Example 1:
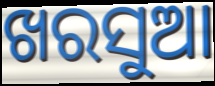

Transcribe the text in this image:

ଖରସୁଆ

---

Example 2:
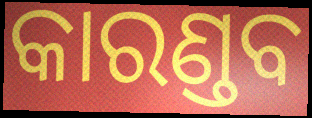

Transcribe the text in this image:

କାରଣ୍ଡବ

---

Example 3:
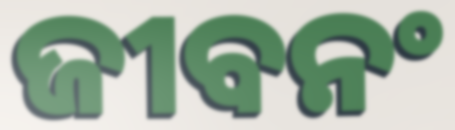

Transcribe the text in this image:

ଜୀବନଂ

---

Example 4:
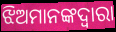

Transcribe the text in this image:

ଝିଅମାନଙ୍କଦ୍ଵାରା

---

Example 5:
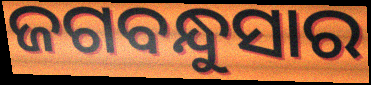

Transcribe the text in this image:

ଜଗବନ୍ଧୁସାର